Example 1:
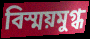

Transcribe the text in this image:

বিস্ময়মুগ্ধ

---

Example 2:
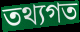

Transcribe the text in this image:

তথ্যগত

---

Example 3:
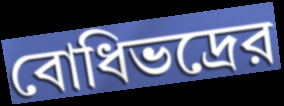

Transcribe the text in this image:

বোধিভদ্রের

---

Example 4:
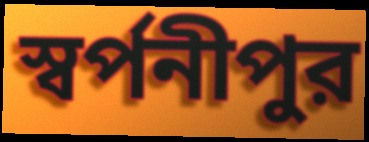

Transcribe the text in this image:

স্বর্পনীপুর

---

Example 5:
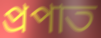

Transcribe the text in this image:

প্রপাত